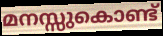
മനസ്സുകൊണ്ട്